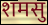
शमसु